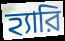
হ্যারি